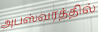
அபஸ்வரத்தில்